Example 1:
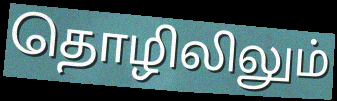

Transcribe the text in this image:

தொழிலிலும்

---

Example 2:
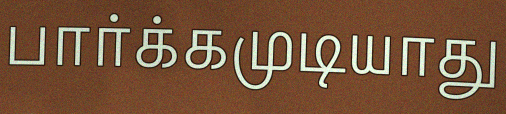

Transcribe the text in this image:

பார்க்கமுடியாது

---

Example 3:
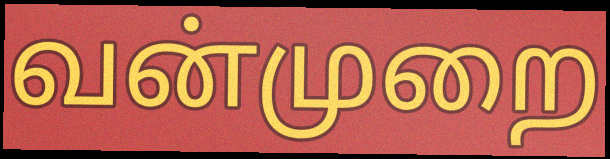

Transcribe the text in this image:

வன்முறை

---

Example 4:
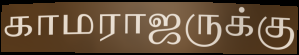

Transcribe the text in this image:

காமராஜருக்கு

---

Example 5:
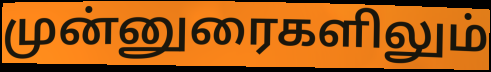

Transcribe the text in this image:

முன்னுரைகளிலும்